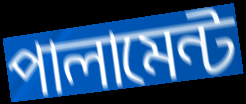
পালামেন্ট